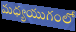
మధ్యయుగంలో